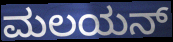
ಮಲಯನ್